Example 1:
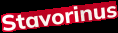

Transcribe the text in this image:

Stavorinus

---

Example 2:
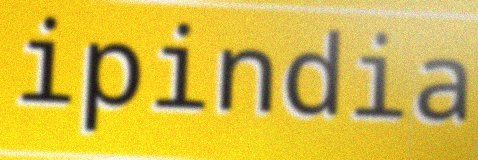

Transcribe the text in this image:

ipindia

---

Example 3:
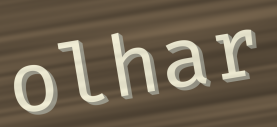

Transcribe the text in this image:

olhar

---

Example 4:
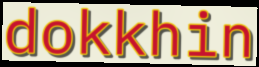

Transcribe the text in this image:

dokkhin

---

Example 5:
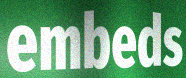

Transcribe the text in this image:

embeds